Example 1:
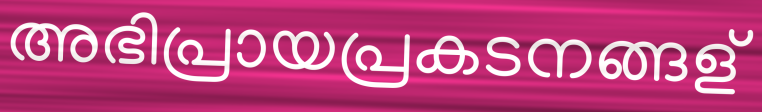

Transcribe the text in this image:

അഭിപ്രായപ്രകടനങ്ങള്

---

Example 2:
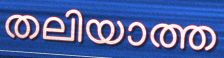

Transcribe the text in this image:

തലിയാത്ത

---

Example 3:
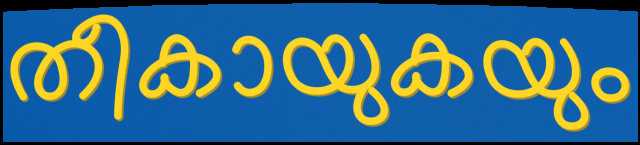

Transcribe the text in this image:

തീകായുകയും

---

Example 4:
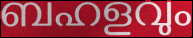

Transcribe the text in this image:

ബഹളവും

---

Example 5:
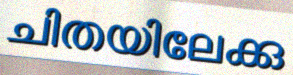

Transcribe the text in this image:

ചിതയിലേക്കു